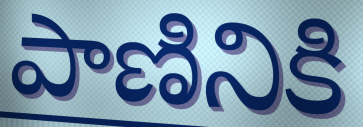
పాణినికి